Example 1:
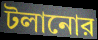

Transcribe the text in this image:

টলানোর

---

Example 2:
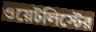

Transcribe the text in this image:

ওয়েটলিস্টের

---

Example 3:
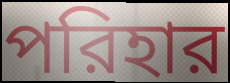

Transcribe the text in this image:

পরিহার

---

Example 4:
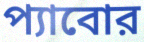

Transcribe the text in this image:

প্যাবোর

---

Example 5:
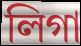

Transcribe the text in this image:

লিগা